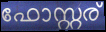
ഫോസ്റ്റര്